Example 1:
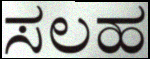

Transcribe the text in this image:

ಸಲಹ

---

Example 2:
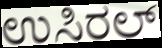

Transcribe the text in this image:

ಉಸಿರಲ್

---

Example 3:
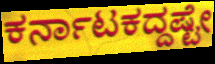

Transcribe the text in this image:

ಕರ್ನಾಟಕದ್ದಷ್ಟೇ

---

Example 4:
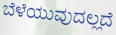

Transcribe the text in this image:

ಬೆಳೆಯುವುದಲ್ಲದೆ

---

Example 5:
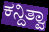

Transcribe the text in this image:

ಕನ್ದಿತ್ವಾ